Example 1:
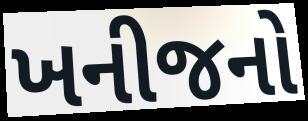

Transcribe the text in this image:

ખનીજનો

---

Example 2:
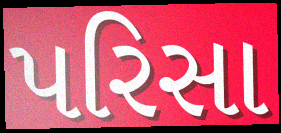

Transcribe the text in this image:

પરિસા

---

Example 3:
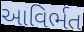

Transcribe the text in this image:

આવિર્ભત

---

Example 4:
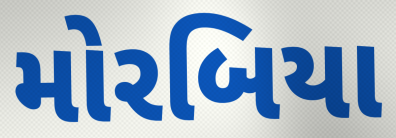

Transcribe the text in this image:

મોરબિયા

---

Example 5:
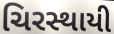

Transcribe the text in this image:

ચિરસ્થાયી